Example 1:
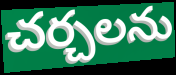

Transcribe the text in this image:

చర్చలను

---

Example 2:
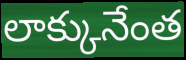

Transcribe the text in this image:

లాక్కునేంత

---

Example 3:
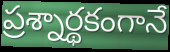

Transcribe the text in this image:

ప్రశ్నార్థకంగానే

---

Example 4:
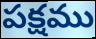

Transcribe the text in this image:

పక్షము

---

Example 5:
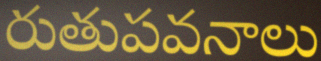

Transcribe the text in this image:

రుతుపవనాలు